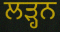
ਲੜ੍ਹਨ